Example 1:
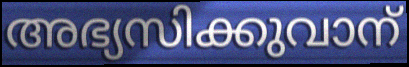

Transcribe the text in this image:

അഭ്യസിക്കുവാന്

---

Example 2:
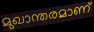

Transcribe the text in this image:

മുഖാന്തരമാണ്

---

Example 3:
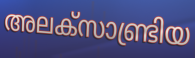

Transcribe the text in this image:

അലക്സാണ്ട്രിയ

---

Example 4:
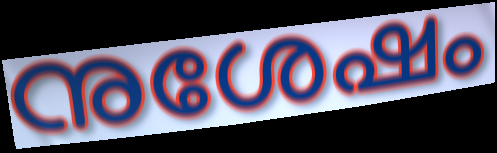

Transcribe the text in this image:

നുശേഷം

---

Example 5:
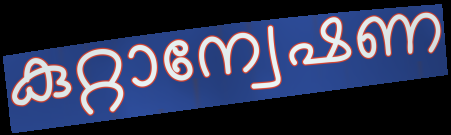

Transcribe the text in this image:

കുറ്റാന്വേഷണ